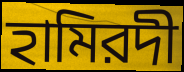
হামিরদী